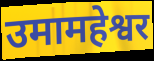
उमामहेश्वर